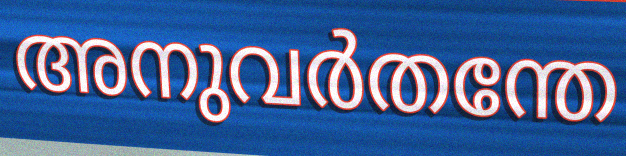
അനുവർതന്തേ